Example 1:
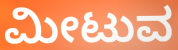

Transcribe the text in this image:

ಮೀಟುವ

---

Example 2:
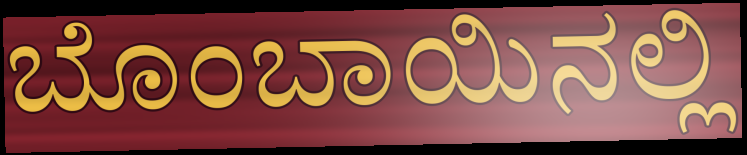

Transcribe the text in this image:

ಬೊಂಬಾಯಿನಲ್ಲಿ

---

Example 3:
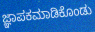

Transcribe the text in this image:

ಜ್ಞಾಪಕಮಾಡಿಕೊಂಡು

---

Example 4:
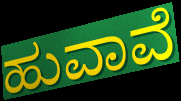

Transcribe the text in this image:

ಹುವಾವೆ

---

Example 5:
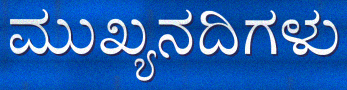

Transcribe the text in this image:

ಮುಖ್ಯನದಿಗಳು